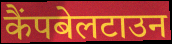
कैंपबेलटाउन